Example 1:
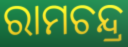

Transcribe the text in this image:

ରାମଚନ୍ଦ୍ର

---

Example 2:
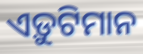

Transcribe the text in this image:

ଏଡ଼ୁଟିମାନ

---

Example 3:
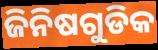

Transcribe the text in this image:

ଜିନିଷଗୁଡିକ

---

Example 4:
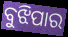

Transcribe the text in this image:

ବୁଝିପାର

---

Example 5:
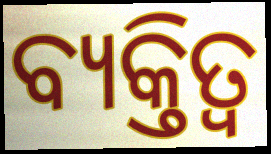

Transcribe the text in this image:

ବ୍ୟକ୍ତିତ୍ଵ